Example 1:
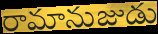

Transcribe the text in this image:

రామానుజుడు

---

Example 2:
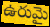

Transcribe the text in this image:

ఉరుమై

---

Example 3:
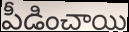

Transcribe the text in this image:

పీడించాయి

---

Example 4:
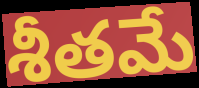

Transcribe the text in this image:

శీతమే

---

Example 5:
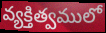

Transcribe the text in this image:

వ్యక్తిత్వములో